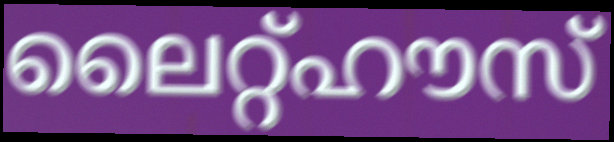
ലൈറ്റ്ഹൗസ്